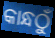
କାନ୍ଧଠୁଁ